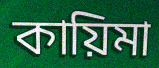
কায়িমা